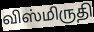
விஸ்மிருதி